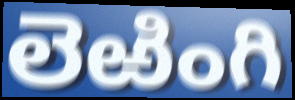
లెఱింగి